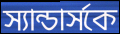
স্যান্ডার্সকে